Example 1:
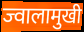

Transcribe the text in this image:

ज्‍वालामुखी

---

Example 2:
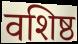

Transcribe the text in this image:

वशिष्ठ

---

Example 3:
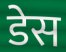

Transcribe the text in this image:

डेस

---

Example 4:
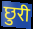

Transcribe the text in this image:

छुरी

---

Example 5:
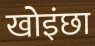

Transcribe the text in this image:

खोइंछा